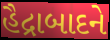
હૈદ્રાબાદને